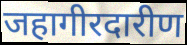
जहागीरदारीण